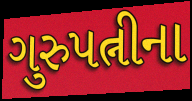
ગુરુપત્નીના